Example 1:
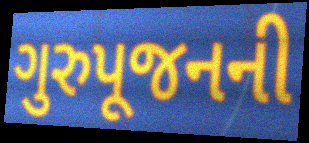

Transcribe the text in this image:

ગુરુપૂજનની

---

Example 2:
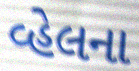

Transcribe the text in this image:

વ્હેલના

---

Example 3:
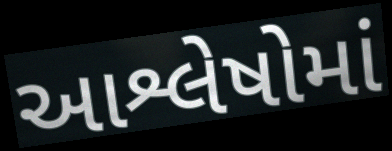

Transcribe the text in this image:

આશ્લેષોમાં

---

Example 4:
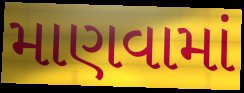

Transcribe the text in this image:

માણવામાં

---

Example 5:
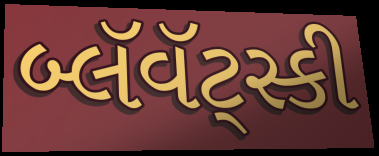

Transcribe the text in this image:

બ્લૅવૅટ્સ્કી